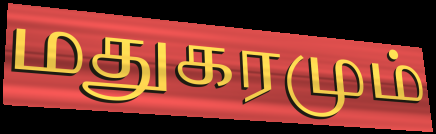
மதுகரமும்